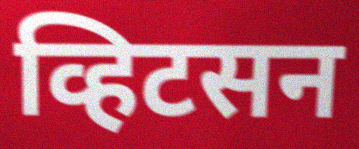
व्हिटसन